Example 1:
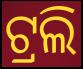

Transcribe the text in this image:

ଟ୍ରଲି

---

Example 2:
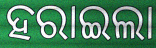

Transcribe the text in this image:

ହରାଇଲା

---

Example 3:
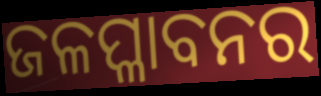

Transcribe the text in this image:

ଜଳପ୍ଳାବନର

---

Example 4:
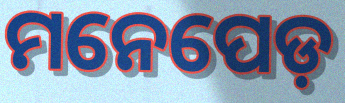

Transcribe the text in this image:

ମନେପେଡ଼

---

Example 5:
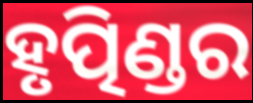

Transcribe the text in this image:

ହୃତ୍ପିଣ୍ଡର